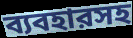
ব্যবহারসহ